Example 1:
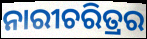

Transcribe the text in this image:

ନାରୀଚରିତ୍ରର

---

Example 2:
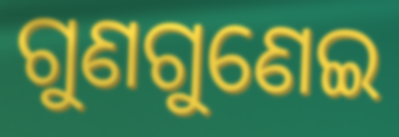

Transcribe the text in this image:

ଗୁଣଗୁଣେଇ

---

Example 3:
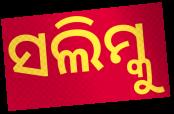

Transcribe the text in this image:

ସଲିମ୍କୁ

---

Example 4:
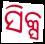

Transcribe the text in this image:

ସିକ୍ସ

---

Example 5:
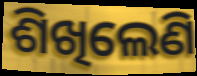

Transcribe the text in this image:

ଶିଖିଲେଣି